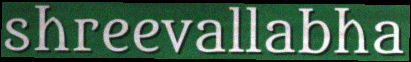
shreevallabha